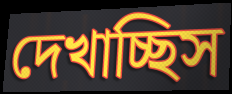
দেখাচ্ছিস